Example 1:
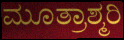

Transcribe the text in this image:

ಮೂತ್ರಾಶ್ಮರಿ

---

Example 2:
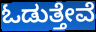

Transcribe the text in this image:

ಓಡುತ್ತೇವೆ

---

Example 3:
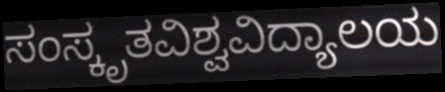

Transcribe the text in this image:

ಸಂಸ್ಕೃತವಿಶ್ವವಿದ್ಯಾಲಯ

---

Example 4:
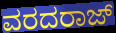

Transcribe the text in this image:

ವರದರಾಜ್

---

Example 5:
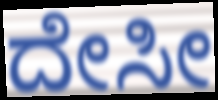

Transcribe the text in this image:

ದೇಸೀ